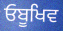
ਓਬੂਖਿਵ